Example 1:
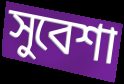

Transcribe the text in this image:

সুবেশা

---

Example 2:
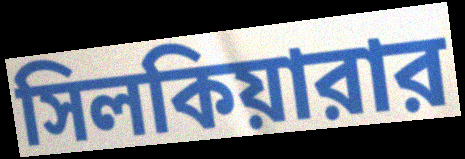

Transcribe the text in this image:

সিলকিয়ারার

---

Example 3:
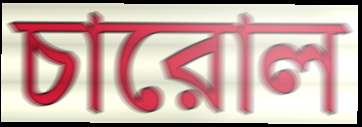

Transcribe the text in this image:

চারোল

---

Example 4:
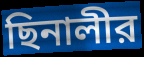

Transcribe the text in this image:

ছিনালীর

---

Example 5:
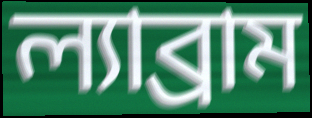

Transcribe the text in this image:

ল্যাব্রাম